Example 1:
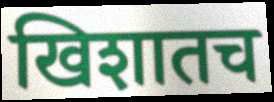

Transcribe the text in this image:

खिशातच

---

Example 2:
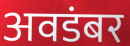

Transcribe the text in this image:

अवडंबर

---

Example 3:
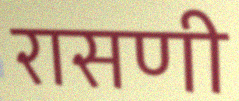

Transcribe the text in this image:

रासणी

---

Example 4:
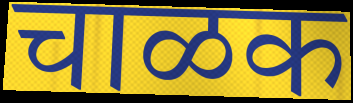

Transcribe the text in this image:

चाळक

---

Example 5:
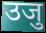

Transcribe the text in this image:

उजु